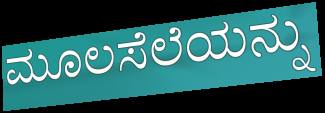
ಮೂಲಸೆಲೆಯನ್ನು